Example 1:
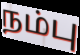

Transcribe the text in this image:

நம்பு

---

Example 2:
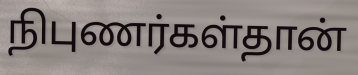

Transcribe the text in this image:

நிபுணர்கள்தான்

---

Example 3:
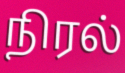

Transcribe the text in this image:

நிரல்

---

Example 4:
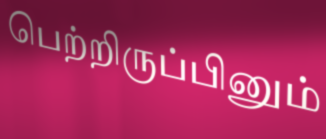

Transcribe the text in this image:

பெற்றிருப்பினும்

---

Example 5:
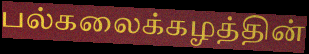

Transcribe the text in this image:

பல்கலைக்கழத்தின்